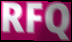
RFQ